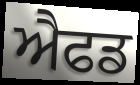
ਐਫਡ